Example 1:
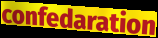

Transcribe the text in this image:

confedaration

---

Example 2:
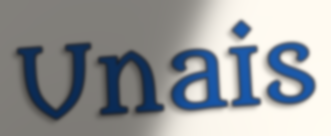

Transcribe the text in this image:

Unais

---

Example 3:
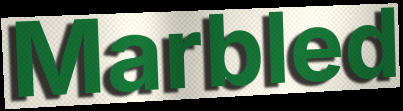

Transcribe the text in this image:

Marbled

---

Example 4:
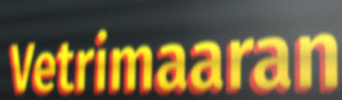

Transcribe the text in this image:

Vetrimaaran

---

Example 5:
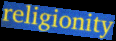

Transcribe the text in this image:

religionity